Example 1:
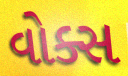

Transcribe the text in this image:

વોક્સ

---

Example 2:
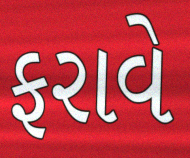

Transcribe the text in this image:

ફરાવે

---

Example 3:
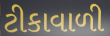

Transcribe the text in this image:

ટીકાવાળી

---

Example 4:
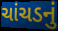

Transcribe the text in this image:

ચાંચડનું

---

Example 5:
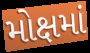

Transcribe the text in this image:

મોક્ષમાં